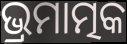
ଭ୍ରମାତ୍ମକ